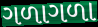
ગળાગળા